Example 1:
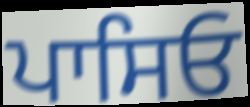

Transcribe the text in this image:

ਪਾਸਿਓ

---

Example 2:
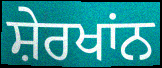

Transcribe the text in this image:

ਸ਼ੇਰਖਾਂਨ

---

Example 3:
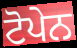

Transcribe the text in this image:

ਟੋਪੇਨ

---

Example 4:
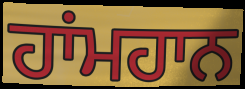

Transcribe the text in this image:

ਹਾਂਮਹਾਨ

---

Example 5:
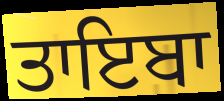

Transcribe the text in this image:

ਤਾਇਬਾ